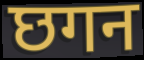
छगन